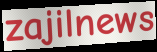
zajilnews